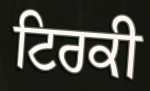
ਟਿਰਕੀ